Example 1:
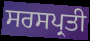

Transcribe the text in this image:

ਸਰਸਪ੍ਰਤੀ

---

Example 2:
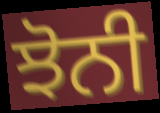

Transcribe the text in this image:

ਝੋਨੀ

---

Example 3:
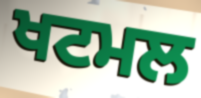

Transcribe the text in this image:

ਖਟਮਲ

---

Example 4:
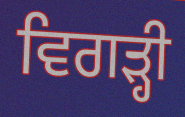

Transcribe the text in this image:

ਵਿਗੜ੍ਹੀ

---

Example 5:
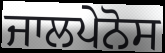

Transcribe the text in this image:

ਜਾਲਪੇਨੋਸ